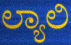
ಲ್ಯಾಲಿ